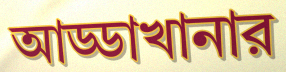
আড্ডাখানার